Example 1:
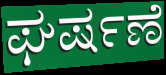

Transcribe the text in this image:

ಘರ್ಷಣೆ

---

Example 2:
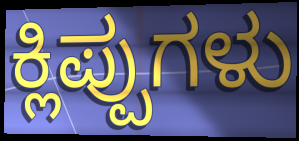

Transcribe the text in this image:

ಕ್ಲಿಪ್ಪುಗಳು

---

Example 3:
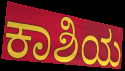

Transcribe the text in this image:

ಕಾಶಿಯ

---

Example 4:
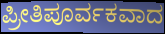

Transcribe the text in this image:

ಪ್ರೀತಿಪೂರ್ವಕವಾದ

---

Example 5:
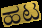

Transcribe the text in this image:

ಹಟ